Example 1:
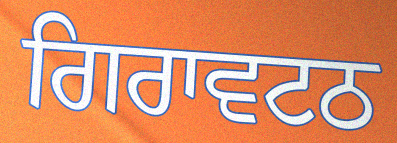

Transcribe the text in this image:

ਗਿਰਾਵਟਠ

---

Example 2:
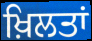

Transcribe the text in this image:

ਖ਼ਿਲਤਾਂ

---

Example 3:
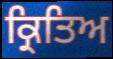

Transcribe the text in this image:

ਕ੍ਰਿਤਿਅ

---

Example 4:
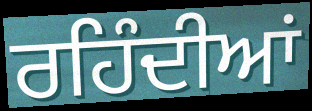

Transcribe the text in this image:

ਰਹਿੰਦੀਆਂ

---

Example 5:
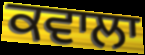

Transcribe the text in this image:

ਕਵਾਲਾ